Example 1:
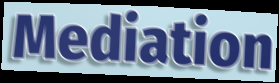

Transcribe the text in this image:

Mediation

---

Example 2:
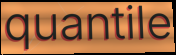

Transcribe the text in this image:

quantile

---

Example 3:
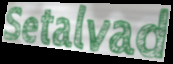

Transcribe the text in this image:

Setalvad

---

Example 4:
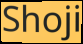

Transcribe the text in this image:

Shoji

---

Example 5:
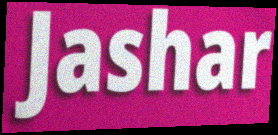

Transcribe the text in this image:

Jashar